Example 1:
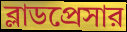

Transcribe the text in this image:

ব্লাডপ্রেসার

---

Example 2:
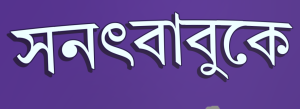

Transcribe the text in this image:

সনৎবাবুকে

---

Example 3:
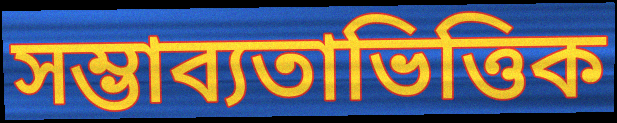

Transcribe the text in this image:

সম্ভাব্যতাভিত্তিক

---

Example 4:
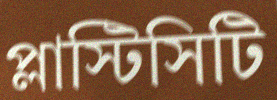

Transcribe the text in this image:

প্লাস্টিসিটি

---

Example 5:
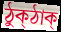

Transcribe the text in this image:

ঠুক্ঠাক্